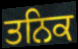
ਤਨਿਕ